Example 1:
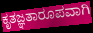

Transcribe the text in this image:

ಕೃತಜ್ಞತಾರೂಪವಾಗಿ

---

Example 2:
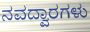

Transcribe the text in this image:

ನವದ್ವಾರಗಳು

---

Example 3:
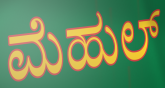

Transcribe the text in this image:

ಮೆಹುಲ್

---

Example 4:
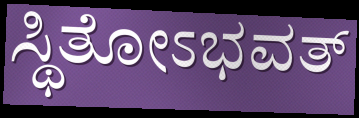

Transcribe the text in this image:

ಸ್ಥಿತೋಽಭವತ್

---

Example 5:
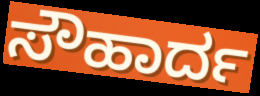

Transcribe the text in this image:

ಸೌಹಾರ್ದ